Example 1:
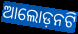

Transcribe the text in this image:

ଆଲୋଡ଼ନଟି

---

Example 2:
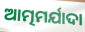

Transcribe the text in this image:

ଆତ୍ମମର୍ଯାଦା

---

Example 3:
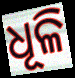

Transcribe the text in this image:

ଧୂଳି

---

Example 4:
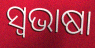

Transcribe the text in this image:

ସ୍ୱଭାଷା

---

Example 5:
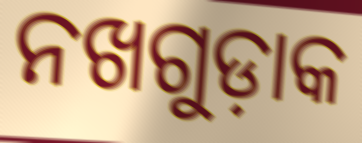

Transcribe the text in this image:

ନଖଗୁଡ଼ାକ